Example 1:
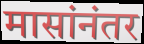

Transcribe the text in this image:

मासांनंतर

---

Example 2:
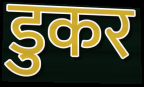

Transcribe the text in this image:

डुकर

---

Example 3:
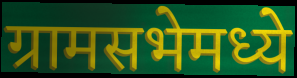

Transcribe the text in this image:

ग्रामसभेमध्ये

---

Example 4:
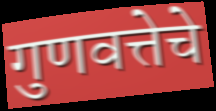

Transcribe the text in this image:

गुणवत्तेचे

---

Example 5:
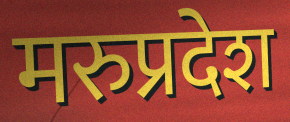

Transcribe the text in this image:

मरुप्रदेश